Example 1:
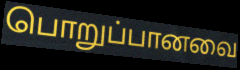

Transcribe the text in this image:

பொறுப்பானவை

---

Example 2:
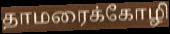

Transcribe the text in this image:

தாமரைக்கோழி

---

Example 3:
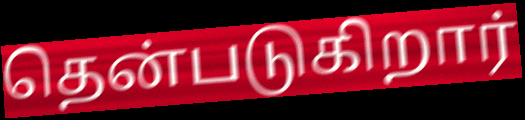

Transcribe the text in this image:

தென்படுகிறார்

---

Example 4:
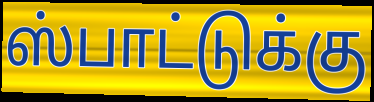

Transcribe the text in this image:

ஸ்பாட்டுக்கு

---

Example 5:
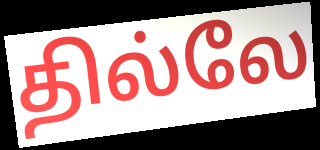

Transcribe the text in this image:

தில்லே